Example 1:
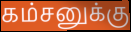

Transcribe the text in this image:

கம்சனுக்கு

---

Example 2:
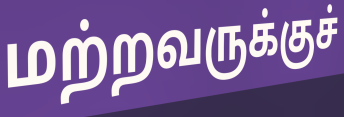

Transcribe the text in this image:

மற்றவருக்குச்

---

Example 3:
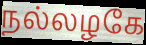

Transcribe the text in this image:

நல்லழகே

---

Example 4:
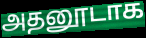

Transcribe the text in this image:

அதனூடாக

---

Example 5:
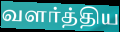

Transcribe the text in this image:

வளர்த்திய